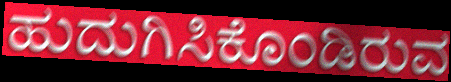
ಹುದುಗಿಸಿಕೊಂಡಿರುವ